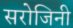
सरोजिनी